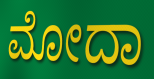
ಮೋದಾ